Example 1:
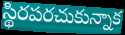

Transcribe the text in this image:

స్థిరపరచుకున్నాక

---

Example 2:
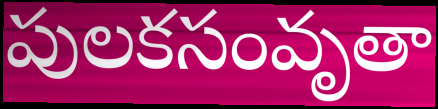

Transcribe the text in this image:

పులకసంవృతా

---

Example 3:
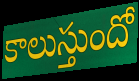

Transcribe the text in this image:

కాలుస్తుందో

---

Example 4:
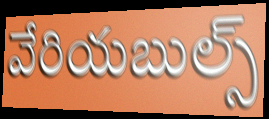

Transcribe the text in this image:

వేరియబుల్స్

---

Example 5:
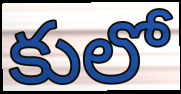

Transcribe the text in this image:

కులో